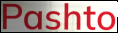
Pashto